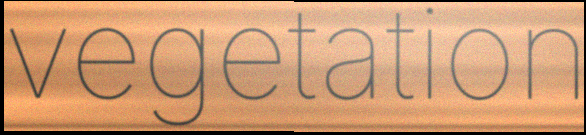
vegetation